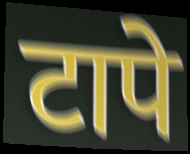
टापे